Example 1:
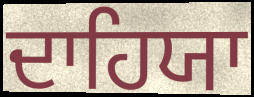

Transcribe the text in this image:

ਦਾਹਿਯਾ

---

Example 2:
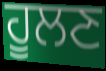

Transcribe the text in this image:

ਹੂਲਣ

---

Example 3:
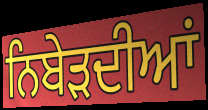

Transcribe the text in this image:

ਨਿਬੇੜਦੀਆਂ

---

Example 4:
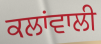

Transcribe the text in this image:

ਕਲਾਂਵਾਲੀ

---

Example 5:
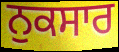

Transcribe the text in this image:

ਨੁਕਸਾਰ